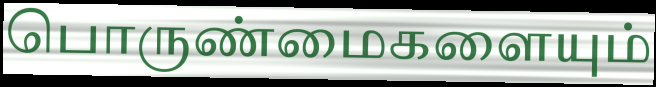
பொருண்மைகளையும்